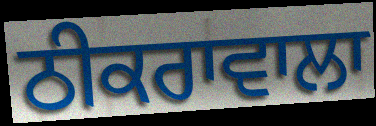
ਠੀਕਰਾਵਾਲਾ